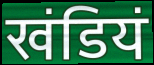
खंडियं